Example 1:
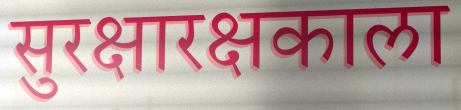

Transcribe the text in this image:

सुरक्षारक्षकाला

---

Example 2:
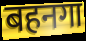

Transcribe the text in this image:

बहनगा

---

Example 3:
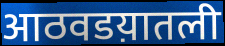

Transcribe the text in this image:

आठवडय़ातली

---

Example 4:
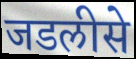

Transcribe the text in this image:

जडलीसे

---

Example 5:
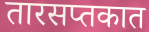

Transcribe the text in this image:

तारसप्तकात